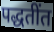
पद्धतींत